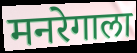
मनरेगाला